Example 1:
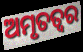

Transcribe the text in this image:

ଅମୃତତ୍ଵର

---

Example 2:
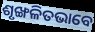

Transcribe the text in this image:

ଶୃଙ୍ଖଳିତଭାବେ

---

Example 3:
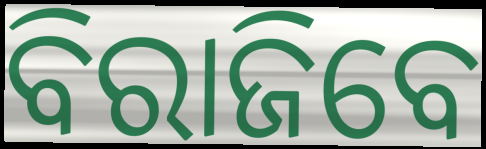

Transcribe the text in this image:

ବିରାଜିବେ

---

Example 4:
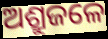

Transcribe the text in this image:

ଅଶ୍ରୁଜଳେ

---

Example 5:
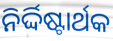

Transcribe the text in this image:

ନିର୍ଦ୍ଦିଷ୍ଟାର୍ଥକ